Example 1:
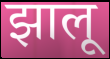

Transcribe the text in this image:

झालू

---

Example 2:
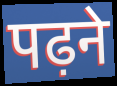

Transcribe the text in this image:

पढ़ने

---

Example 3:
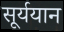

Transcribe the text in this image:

सूर्ययान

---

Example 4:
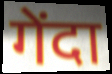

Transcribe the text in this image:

गेंदा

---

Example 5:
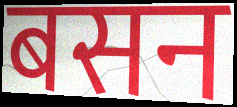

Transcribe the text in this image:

बसन